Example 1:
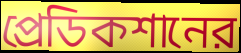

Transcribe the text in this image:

প্রেডিকশানের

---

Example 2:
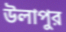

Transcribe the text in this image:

উলাপুর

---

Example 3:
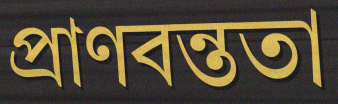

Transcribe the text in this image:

প্রাণবন্ততা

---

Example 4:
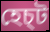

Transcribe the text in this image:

হেচ্ট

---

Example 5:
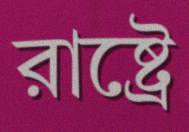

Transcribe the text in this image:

রাষ্ট্রে